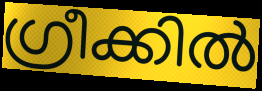
ഗ്രീക്കിൽ